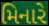
મિનારે